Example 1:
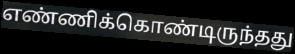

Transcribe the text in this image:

எண்ணிக்கொண்டிருந்தது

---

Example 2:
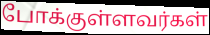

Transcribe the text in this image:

போக்குள்ளவர்கள்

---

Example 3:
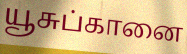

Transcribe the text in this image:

யூசுப்கானை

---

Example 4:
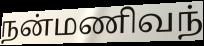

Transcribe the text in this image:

நன்மணிவந்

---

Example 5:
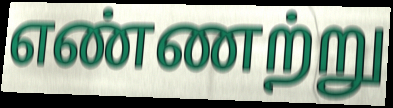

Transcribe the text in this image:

எண்ணற்று